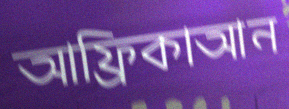
আফ্রিকাআন